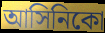
আসিনিকো